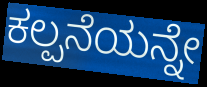
ಕಲ್ಪನೆಯನ್ನೇ